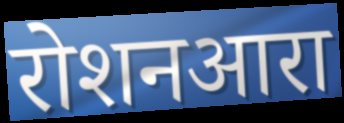
रोशनआरा